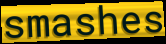
smashes